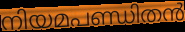
നിയമപണ്ഡിതൻ